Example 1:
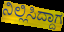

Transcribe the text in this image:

ನಿಲ್ಲಿಸಿದ್ದಾಗ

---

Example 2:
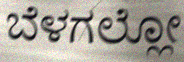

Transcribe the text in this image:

ಬೆಳಗಲ್ಲೋ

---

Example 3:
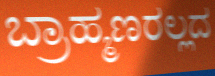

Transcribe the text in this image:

ಬ್ರಾಹ್ಮಣರಲ್ಲದ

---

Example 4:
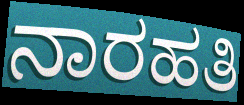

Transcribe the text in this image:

ನಾರಹತಿ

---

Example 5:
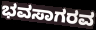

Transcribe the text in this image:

ಭವಸಾಗರವ